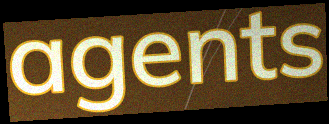
agents